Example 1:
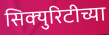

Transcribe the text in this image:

सिक्युरिटीच्या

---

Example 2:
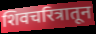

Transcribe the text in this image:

शिवचरित्रातून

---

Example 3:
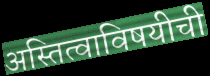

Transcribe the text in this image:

अस्तित्वाविषयीची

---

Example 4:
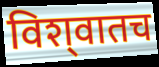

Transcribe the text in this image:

विश्वातच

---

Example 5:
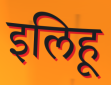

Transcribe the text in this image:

इलिहू